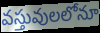
వస్తువులలోనూ